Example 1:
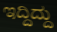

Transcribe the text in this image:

ಇದ್ದಿದ್ದು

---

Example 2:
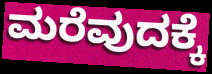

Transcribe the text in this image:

ಮರೆವುದಕ್ಕೆ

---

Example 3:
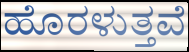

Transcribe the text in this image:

ಹೊರಳುತ್ತವೆ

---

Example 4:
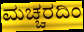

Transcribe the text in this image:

ಮಚ್ಚರದಿಂ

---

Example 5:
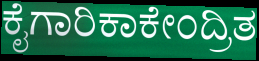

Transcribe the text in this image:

ಕೈಗಾರಿಕಾಕೇಂದ್ರಿತ